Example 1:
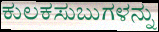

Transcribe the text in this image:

ಕುಲಕಸುಬುಗಳನ್ನು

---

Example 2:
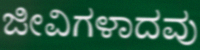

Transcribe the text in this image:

ಜೀವಿಗಳಾದವು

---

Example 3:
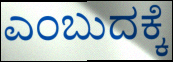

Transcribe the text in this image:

ಎಂಬುದಕ್ಕೆ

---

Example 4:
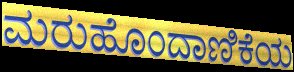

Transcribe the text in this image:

ಮರುಹೊಂದಾಣಿಕೆಯ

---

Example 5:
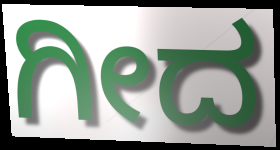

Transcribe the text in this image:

ಗೀದ